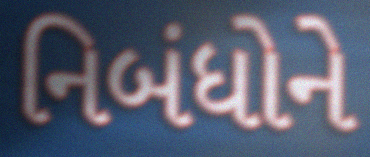
નિબંધોને